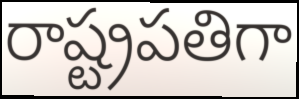
రాష్ట్రపతిగా